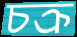
চক্র